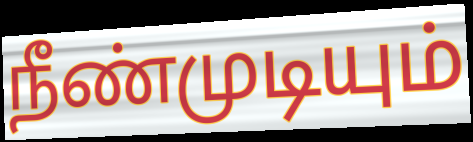
நீண்முடியும்